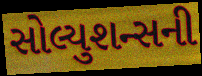
સોલ્યુશન્સની